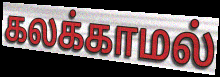
கலக்காமல்